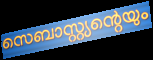
സെബാസ്റ്റ്യന്റെയും